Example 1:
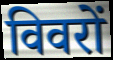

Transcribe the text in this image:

विवरों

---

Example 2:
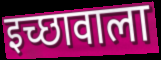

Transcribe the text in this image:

इच्छावाला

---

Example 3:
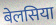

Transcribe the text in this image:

बेलसिया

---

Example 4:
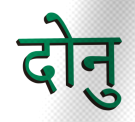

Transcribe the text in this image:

दोनु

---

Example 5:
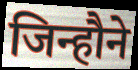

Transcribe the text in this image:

जिन्हौने